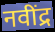
नवींद्र